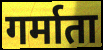
गर्माता